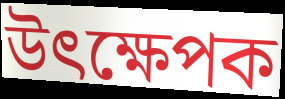
উৎক্ষেপক